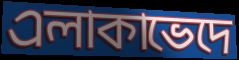
এলাকাভেদে